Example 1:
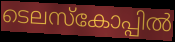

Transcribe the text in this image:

ടെലസ്കോപ്പിൽ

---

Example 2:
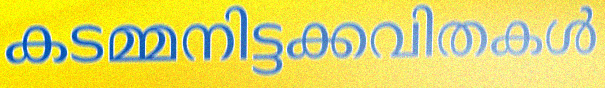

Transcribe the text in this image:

കടമ്മനിട്ടക്കവിതകൾ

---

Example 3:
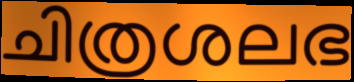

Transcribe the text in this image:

ചിത്രശലഭ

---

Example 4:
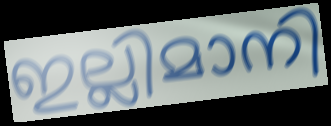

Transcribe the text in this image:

ഇല്ലിമാനി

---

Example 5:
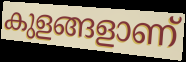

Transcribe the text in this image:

കുളങ്ങളാണ്